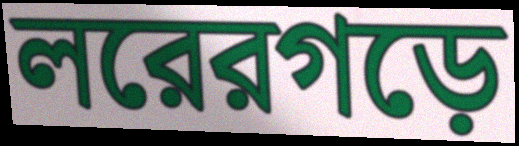
লরেরগড়ে